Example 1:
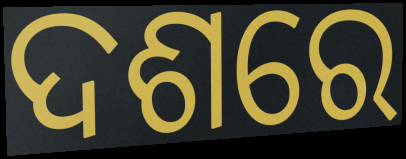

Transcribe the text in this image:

ଦଶରେ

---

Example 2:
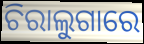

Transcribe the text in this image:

ଚିରାଲୁଗାରେ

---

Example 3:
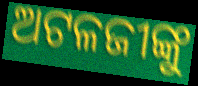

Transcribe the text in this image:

ଅଟଳଜୀଙ୍କୁ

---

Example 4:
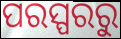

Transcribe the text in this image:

ପରସ୍ପରରୁ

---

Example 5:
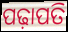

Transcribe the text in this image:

ପଢ଼ାପତି